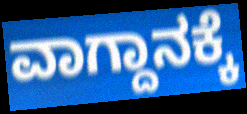
ವಾಗ್ದಾನಕ್ಕೆ